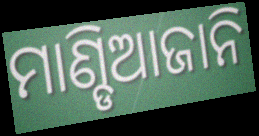
ମାଣ୍ଡିଆଜାନି